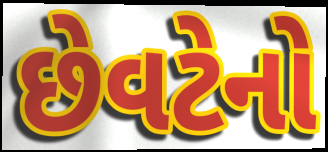
છેવટેનો